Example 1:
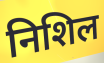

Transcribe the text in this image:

निशिल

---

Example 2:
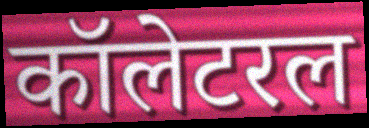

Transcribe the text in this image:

कॉलेटरल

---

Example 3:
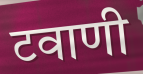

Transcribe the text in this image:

टवाणी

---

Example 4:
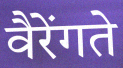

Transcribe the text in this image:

वैरेंगते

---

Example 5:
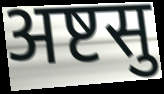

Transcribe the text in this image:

अष्टसु